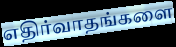
எதிர்வாதங்களை